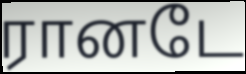
ரானடே